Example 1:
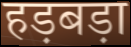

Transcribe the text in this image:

हड़बड़ा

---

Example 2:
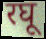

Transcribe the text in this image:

रघू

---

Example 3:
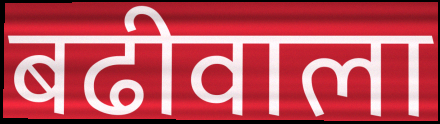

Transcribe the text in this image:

बढीवाला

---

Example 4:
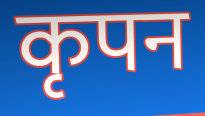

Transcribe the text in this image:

कृपन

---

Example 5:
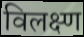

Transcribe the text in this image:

विलक्ष्ण